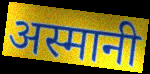
अस्मानी